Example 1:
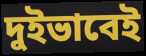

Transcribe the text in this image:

দুইভাবেই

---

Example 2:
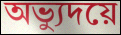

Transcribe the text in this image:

অভ্যুদয়ে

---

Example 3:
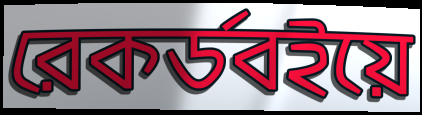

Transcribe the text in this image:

রেকর্ডবইয়ে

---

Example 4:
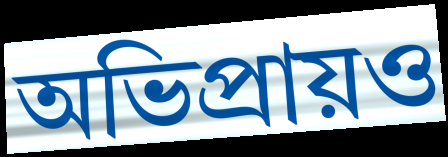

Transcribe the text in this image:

অভিপ্রায়ও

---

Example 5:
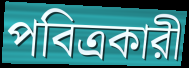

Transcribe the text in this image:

পবিত্রকারী